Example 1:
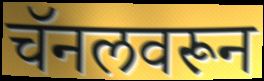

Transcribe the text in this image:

चॅनलवरून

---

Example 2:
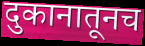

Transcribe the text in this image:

दुकानातूनच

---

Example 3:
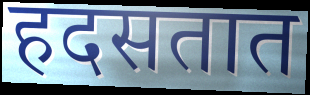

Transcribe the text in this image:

हदसतात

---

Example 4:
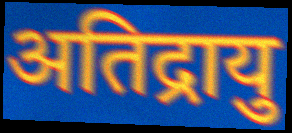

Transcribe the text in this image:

अतिद्रायु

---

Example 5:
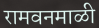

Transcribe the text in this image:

रामवनमाळी